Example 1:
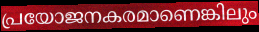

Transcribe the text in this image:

പ്രയോജനകരമാണെങ്കിലും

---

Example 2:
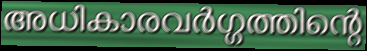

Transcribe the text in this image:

അധികാരവർഗ്ഗത്തിന്റെ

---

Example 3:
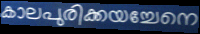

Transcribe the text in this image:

കാലപുരിക്കയച്ചേനെ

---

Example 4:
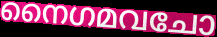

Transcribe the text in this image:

നൈഗമവചോ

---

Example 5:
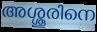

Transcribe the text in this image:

അശ്ശൂരിനെ